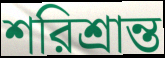
শরিশ্রান্ত